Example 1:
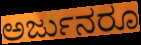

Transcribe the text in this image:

ಅರ್ಜುನರೂ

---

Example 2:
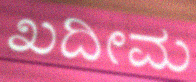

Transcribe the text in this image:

ಖದೀಮ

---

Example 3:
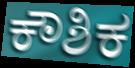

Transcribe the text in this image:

ಕೌಶಿಕ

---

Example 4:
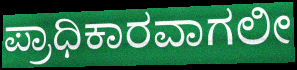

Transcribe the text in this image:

ಪ್ರಾಧಿಕಾರವಾಗಲೀ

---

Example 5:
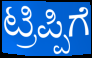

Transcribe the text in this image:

ಟ್ರಿಪ್ಪಿಗೆ